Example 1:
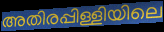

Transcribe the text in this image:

അതിരപ്പിള്ളിയിലെ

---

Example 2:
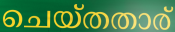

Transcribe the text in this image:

ചെയ്തതാര്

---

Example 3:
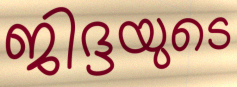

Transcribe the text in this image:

ജിദ്ദയുടെ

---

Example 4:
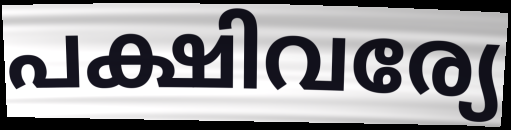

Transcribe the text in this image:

പക്ഷിവര്യേ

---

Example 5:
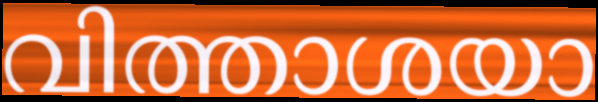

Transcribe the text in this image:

വിത്താശയാ